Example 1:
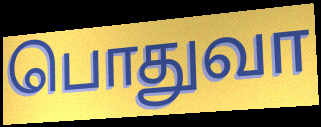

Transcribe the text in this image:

பொதுவா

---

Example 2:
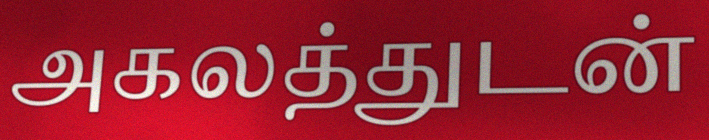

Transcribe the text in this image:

அகலத்துடன்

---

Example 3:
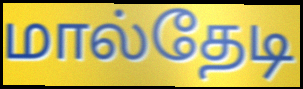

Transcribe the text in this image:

மால்தேடி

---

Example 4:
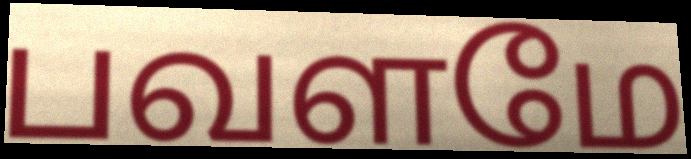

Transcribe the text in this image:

பவளமே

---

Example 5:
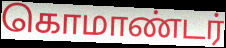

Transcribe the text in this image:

கொமாண்டர்